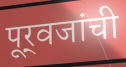
पूर्वजांची